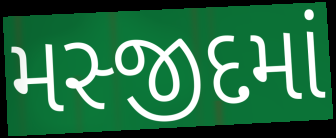
મસ્જીદમાં